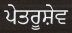
ਪੇਤਰੂਸ਼ੇਵ